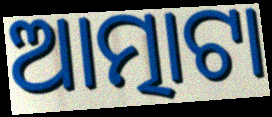
ଆତ୍ମାଟା